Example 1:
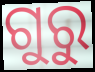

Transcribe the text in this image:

ଗୁରୁ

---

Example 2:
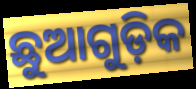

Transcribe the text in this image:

ଛୁଆଗୁଡ଼ିକ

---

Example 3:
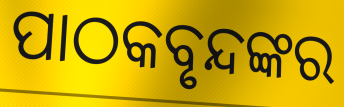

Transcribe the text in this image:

ପାଠକବୃନ୍ଦଙ୍କର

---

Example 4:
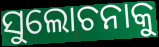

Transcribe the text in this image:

ସୁଲୋଚନାକୁ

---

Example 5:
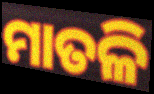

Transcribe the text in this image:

ମାତଳି